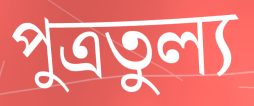
পুত্রতুল্য